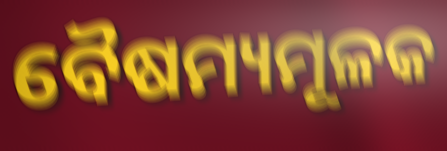
ବୈଷମ୍ୟମୂଳକ